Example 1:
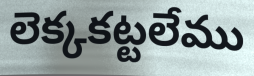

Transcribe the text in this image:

లెక్కకట్టలేము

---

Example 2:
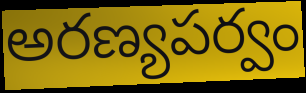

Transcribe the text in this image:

అరణ్యపర్వం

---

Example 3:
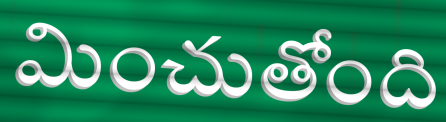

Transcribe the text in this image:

మించుతోంది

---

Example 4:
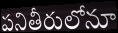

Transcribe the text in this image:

పనితీరులోనూ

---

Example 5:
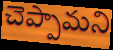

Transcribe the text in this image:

చెప్పామని